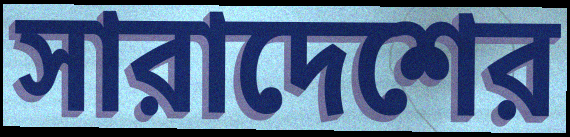
সারাদেশের